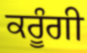
ਕਰੂੰਗੀ